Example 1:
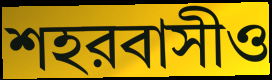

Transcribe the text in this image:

শহরবাসীও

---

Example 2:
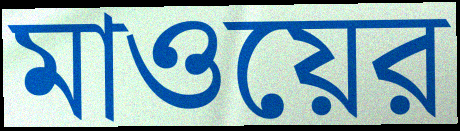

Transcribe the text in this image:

মাওয়ের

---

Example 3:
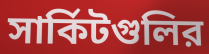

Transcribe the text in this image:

সার্কিটগুলির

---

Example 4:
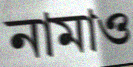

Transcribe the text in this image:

নামাও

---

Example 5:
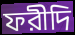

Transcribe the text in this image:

ফরীদি